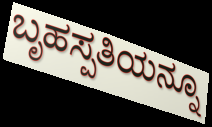
ಬೃಹಸ್ಪತಿಯನ್ನೂ